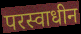
परस्वाधीन